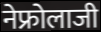
नेफ्रोलाजी